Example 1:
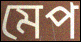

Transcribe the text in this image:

মেপ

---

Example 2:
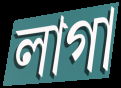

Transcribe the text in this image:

লাগা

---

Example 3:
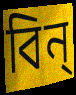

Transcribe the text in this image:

বিন্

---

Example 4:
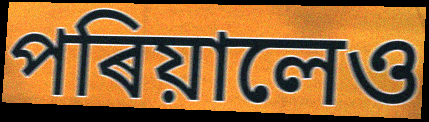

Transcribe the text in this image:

পৰিয়ালেও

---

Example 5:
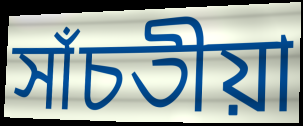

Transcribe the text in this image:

সাঁচতীয়া